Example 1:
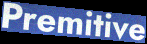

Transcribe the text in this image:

Premitive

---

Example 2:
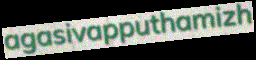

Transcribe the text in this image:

agasivapputhamizh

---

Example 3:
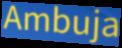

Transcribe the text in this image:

Ambuja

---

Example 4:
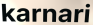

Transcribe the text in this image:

karnari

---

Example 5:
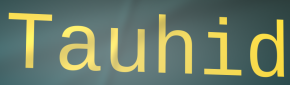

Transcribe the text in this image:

Tauhid